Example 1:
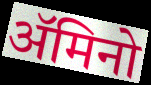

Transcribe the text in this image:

ॲमिनो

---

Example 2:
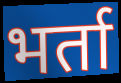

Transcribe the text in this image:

भर्ता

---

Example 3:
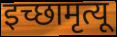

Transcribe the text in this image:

इच्छामृत्यू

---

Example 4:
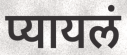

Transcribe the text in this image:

प्यायलं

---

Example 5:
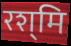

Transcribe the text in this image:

रश्मि